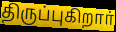
திருப்புகிறார்